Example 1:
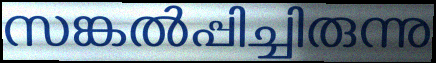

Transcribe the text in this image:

സങ്കൽപ്പിച്ചിരുന്നു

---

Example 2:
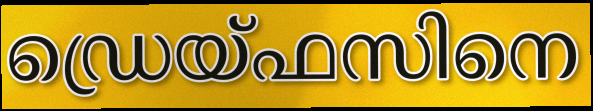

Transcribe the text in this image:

ഡ്രെയ്ഫസിനെ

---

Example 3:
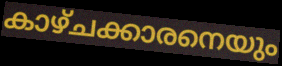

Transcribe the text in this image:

കാഴ്ചക്കാരനെയും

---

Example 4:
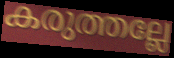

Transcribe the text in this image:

കരുത്തല്ലേ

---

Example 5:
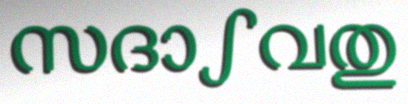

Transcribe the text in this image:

സദാഽവതു